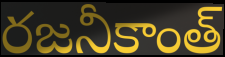
రజనీకాంత్